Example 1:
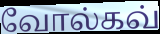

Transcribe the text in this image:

வோல்கவ்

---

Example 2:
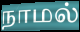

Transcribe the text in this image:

நாமல்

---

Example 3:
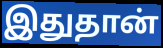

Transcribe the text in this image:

இதுதான்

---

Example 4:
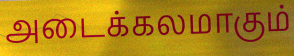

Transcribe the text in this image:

அடைக்கலமாகும்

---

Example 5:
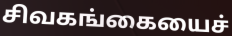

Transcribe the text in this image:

சிவகங்கையைச்